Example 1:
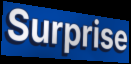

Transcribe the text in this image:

Surprise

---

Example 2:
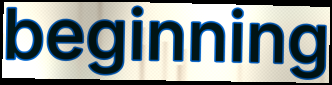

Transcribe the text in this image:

beginning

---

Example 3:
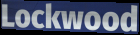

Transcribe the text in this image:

Lockwood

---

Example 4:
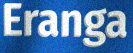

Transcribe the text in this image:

Eranga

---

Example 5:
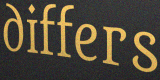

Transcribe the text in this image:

differs